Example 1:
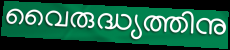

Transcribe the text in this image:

വൈരുദ്ധ്യത്തിനു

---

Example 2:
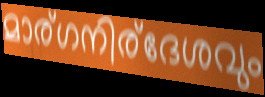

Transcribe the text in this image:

മാര്ഗനിര്ദേശവും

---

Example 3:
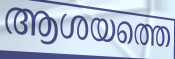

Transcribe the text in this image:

ആശയത്തെ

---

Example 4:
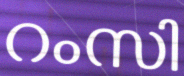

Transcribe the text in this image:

റംസി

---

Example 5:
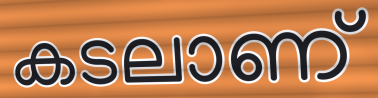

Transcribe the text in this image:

കടലാണ്